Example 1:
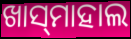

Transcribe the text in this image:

ଖାସ୍‌ମାହାଲ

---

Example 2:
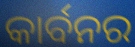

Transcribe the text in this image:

କାର୍ବନର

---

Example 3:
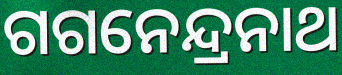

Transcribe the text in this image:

ଗଗନେନ୍ଦ୍ରନାଥ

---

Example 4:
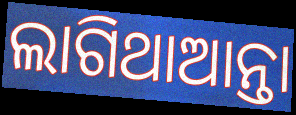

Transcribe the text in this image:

ଲାଗିଥାଆନ୍ତା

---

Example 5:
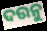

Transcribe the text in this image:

ଦଉନୁ